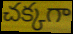
చక్కగా